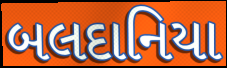
બલદાનિયા